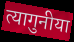
त्यागुनीया